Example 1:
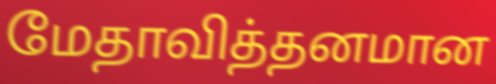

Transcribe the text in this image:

மேதாவித்தனமான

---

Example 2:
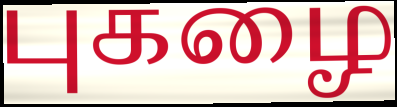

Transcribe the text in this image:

புகழை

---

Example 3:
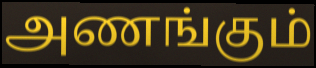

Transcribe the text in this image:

அணங்கும்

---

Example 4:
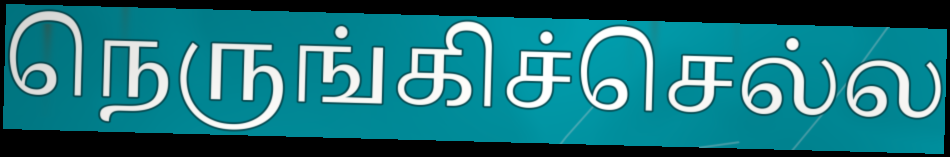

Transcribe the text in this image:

நெருங்கிச்செல்ல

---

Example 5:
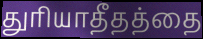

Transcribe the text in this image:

துரியாதீதத்தை